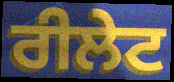
ਰੀਲੇਟ